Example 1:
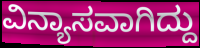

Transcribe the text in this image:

ವಿನ್ಯಾಸವಾಗಿದ್ದು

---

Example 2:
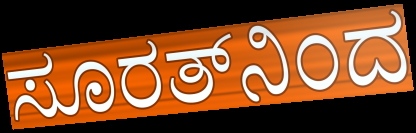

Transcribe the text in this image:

ಸೂರತ್‌ನಿಂದ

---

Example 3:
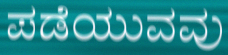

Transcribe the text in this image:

ಪಡೆಯುವವು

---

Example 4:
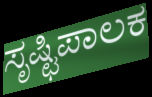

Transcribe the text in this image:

ಸೃಷ್ಟಿಪಾಲಕ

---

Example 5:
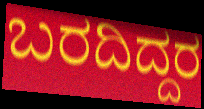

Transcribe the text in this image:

ಬರದಿದ್ದರ